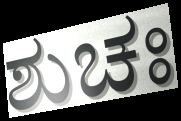
ಶುಚಃ